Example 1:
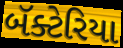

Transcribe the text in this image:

બૅક્ટેરિયા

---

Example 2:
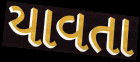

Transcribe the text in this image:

યાવતા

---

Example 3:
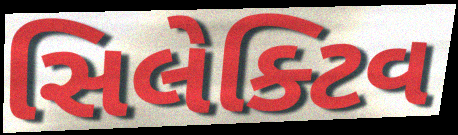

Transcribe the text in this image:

સિલેક્ટિવ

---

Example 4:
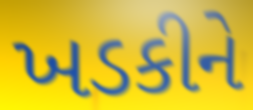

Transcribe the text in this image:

ખડકીને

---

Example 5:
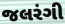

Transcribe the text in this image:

જલરંગી